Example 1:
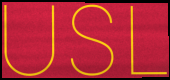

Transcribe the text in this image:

USL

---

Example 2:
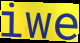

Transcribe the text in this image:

iwe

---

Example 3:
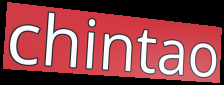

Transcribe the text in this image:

chintao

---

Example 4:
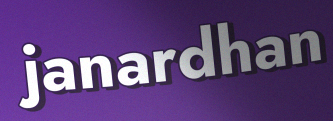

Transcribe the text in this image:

janardhan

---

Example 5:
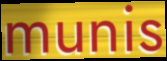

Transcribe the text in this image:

munis